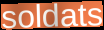
soldats